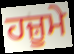
ਹਜ਼ੂਮੇ